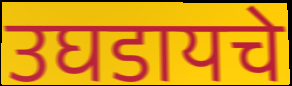
उघडायचे